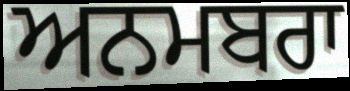
ਅਨਮਬਰਾ